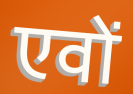
एवों